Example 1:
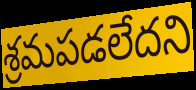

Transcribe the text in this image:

శ్రమపడలేదని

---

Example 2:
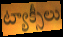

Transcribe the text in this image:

ట్యాక్సీలు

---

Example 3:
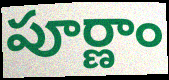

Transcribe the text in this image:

పూర్ణాం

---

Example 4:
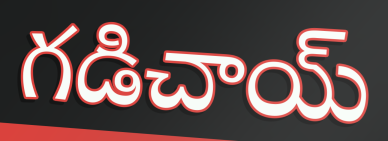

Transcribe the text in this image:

గడిచాయ్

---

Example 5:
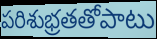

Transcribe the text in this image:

పరిశుభ్రతతోపాటు